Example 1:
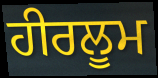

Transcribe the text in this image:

ਹੀਰਲੂਮ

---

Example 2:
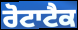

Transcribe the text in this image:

ਰੋਟਾਟੈਕ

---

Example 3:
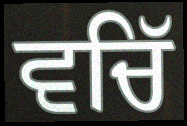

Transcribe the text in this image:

ਵਚਿੱ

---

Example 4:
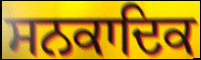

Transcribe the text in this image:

ਸਨਕਾਦਿਕ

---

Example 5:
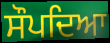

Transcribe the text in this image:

ਸੌਪਦਿਆ